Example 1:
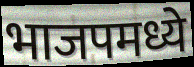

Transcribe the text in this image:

भाजपमध्ये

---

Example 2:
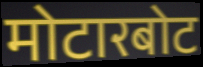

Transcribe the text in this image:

मोटारबोट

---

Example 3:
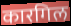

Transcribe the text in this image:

कारगिल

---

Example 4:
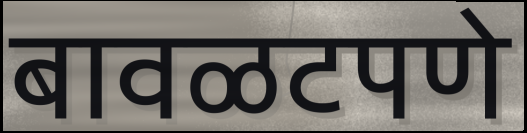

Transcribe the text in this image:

बावळटपणे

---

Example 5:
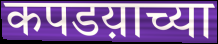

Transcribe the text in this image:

कपडय़ाच्या